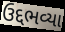
ઉદ્દભવ્યા